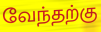
வேந்தற்கு